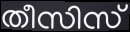
തീസിസ്